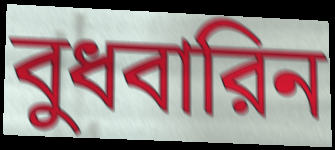
বুধবারিন